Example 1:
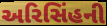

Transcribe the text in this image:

અરિસિંહની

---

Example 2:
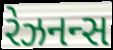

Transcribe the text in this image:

રેઝનન્સ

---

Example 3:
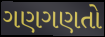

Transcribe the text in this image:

ગણગણતો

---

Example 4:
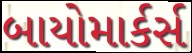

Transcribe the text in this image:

બાયોમાર્કર્સ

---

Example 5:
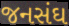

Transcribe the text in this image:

જનસંઘ